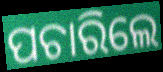
ପଚାରିଲେ